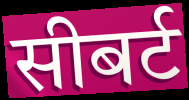
सीबर्ट